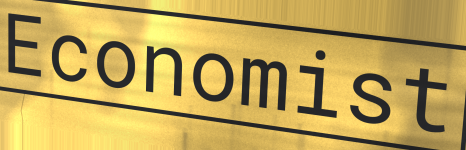
Economist